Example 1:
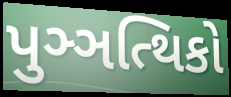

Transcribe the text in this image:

પુઞ્ઞત્થિકો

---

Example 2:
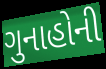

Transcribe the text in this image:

ગુનાહોની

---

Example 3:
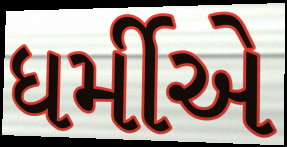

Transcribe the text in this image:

ધર્મીએ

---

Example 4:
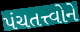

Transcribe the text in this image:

પંચતત્ત્વોને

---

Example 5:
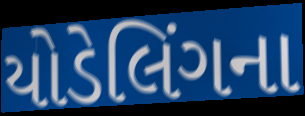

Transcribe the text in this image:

યોડેલિંગના